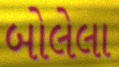
બોલેલા